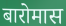
बारोमास